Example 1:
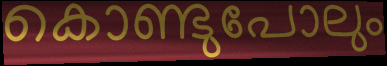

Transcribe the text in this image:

കൊണ്ടുപോലും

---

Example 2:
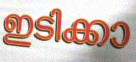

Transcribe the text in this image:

ഇടിക്കാ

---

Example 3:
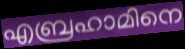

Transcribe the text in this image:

എബ്രഹാമിനെ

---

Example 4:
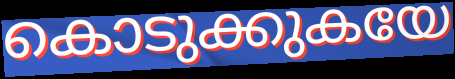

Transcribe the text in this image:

കൊടുക്കുകയേ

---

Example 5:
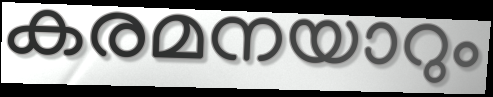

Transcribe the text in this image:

കരമനയാറും